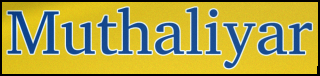
Muthaliyar